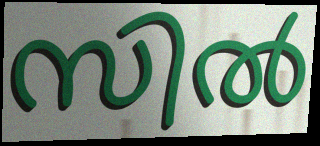
സിൽ